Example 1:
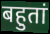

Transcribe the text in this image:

बहुतां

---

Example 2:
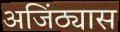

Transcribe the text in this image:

अजिंठ्यास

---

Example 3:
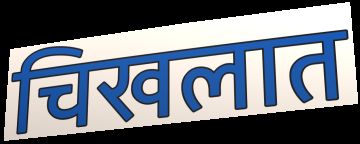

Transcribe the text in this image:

चिखलात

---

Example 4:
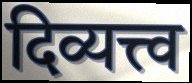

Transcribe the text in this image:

दिव्यत्त्व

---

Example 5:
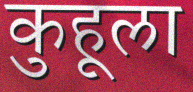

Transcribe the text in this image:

कुहूला